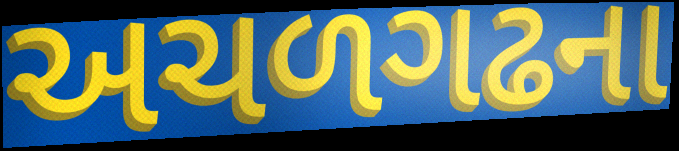
અચળગઢના